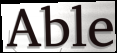
Able